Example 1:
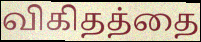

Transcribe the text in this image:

விகிதத்தை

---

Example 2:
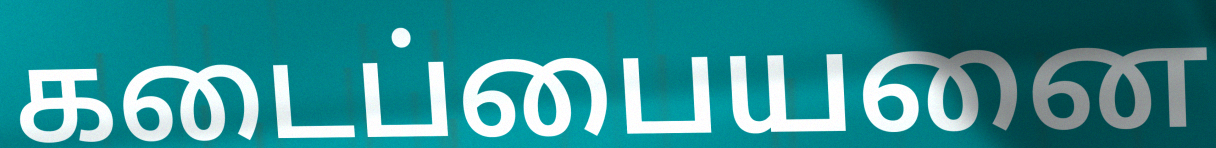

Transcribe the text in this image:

கடைப்பையனை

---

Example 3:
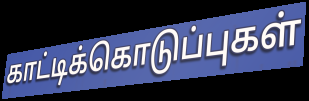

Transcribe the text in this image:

காட்டிக்கொடுப்புகள்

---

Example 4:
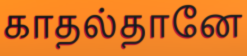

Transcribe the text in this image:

காதல்தானே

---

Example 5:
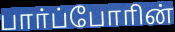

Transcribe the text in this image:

பார்ப்போரின்